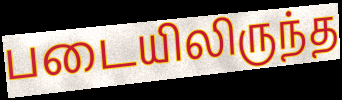
படையிலிருந்த